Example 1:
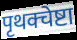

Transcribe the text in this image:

पृथक्चेष्टा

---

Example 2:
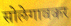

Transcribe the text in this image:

सोलेगावकर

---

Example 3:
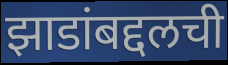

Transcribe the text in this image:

झाडांबद्दलची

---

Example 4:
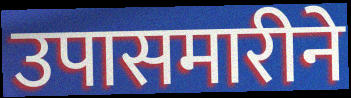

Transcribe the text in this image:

उपासमारीने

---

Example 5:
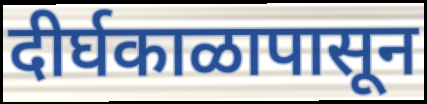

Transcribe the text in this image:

दीर्घकाळापासून